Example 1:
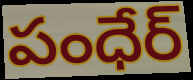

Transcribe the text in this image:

పంధేర్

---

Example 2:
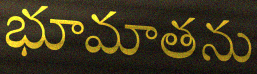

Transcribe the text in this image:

భూమాతను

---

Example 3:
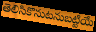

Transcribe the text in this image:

తెలిసికొనుటనుబట్టియే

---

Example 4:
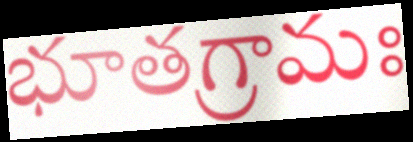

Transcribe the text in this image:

భూతగ్రామః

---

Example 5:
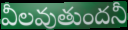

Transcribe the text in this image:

వీలవుతుందనీ